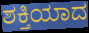
ಶಕ್ತಿಯಾದ